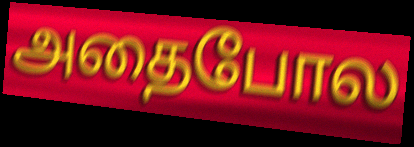
அதைபோல